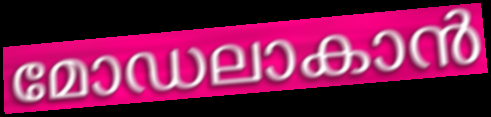
മോഡലാകാൻ